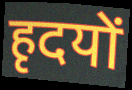
हृदयों